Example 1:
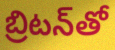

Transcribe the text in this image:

బ్రిటన్‌తో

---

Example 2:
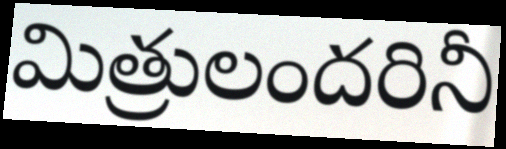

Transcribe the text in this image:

మిత్రులందరినీ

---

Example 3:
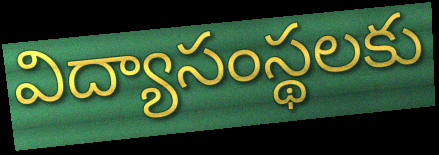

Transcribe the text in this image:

విద్యాసంస్థలకు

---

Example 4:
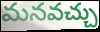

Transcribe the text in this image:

మనవచ్చు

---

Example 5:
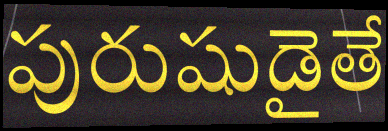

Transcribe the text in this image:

పురుషుడైతే